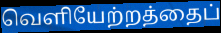
வெளியேற்றத்தைப்